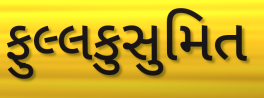
ફુલ્લકુસુમિત